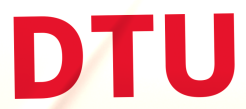
DTU